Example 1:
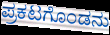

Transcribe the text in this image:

ಪ್ರಕಟಗೊಂಡನು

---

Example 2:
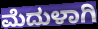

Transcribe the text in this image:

ಮೆದುಳಾಗಿ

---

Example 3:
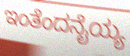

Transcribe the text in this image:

ಇಂತೆಂದನೈಯ್ಯ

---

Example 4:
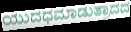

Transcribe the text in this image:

ಯುದಧಮಾಡುತ್ರಾದದ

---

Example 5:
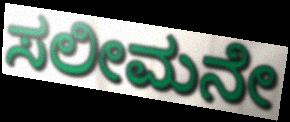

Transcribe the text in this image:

ಸಲೀಮನೇ